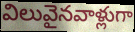
విలువైనవాళ్లుగా